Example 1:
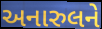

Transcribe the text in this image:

અનારુલને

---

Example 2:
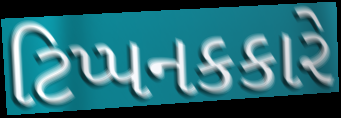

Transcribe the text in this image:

ટિપ્પનકકારે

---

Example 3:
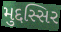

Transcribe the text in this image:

મુદ્દસ્સિર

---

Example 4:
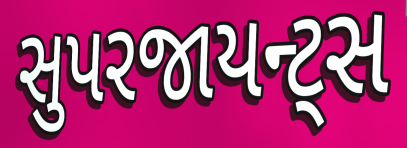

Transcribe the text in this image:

સુપરજાયન્ટ્સ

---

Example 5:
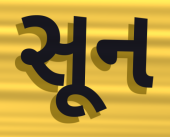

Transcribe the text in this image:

સૂન